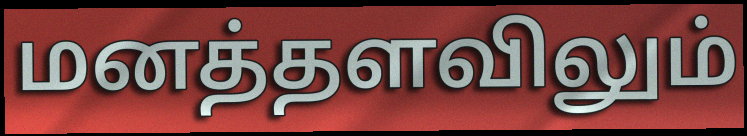
மனத்தளவிலும்